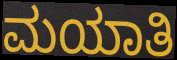
ಮಯಾತಿ